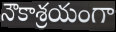
నౌకాశ్రయంగా